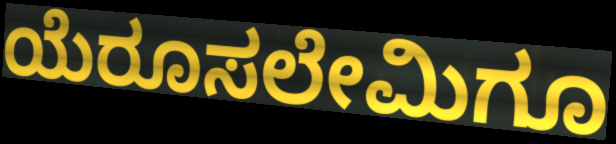
ಯೆರೂಸಲೇಮಿಗೂ